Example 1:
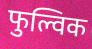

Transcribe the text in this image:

फुल्विक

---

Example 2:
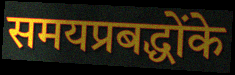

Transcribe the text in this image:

समयप्रबद्धोंके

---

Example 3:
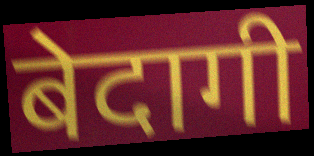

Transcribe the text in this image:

बेदागी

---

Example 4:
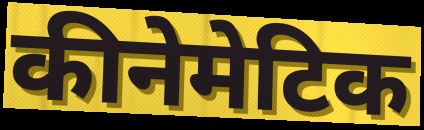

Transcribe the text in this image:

कीनेमेटिक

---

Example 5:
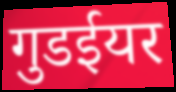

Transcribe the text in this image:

गुडईयर